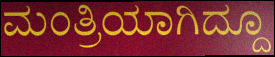
ಮಂತ್ರಿಯಾಗಿದ್ದೂ